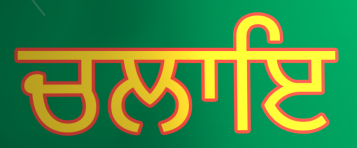
ਚਲਾਇ